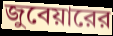
জুবেয়ারের